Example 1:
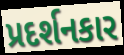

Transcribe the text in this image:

પ્રદર્શનકાર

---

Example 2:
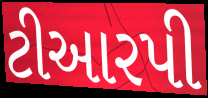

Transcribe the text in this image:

ટીઆરપી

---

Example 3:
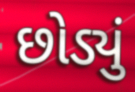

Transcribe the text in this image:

છોડ્યું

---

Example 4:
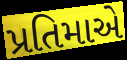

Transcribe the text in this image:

પ્રતિમાએ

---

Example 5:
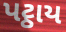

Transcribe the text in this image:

પટ્ઠાય